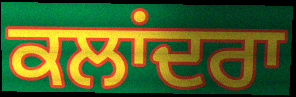
ਕਲਾਂਦਰਾ